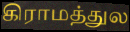
கிராமத்துல